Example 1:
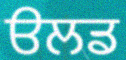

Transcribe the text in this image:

ੳਲਡ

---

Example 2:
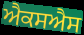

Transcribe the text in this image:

ਐਕਸਐਸ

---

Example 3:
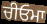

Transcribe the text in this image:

ਚੀਓਮਾ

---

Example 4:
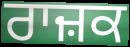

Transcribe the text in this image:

ਰਾਜ਼ਕ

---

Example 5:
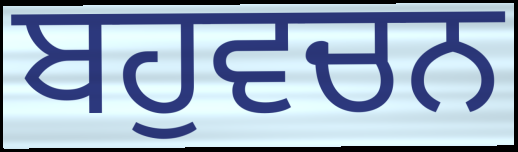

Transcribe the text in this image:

ਬਹੁਵਚਨ